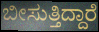
ಬೀಸುತ್ತಿದ್ದಾರೆ